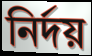
নির্দয়